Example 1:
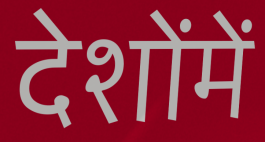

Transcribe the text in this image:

देशोंमें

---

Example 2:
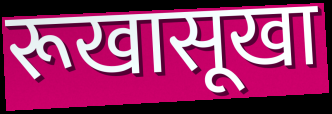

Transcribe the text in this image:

रूखासूखा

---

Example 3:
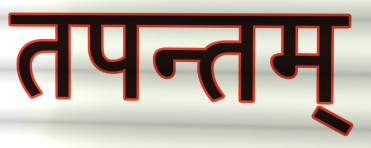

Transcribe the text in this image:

तपन्तम्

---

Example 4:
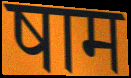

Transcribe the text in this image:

षाम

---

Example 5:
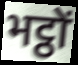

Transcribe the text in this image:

भट्ठों